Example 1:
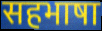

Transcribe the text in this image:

सहभाषा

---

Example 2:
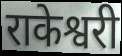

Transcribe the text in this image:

राकेश्वरी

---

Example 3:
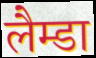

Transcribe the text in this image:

लैम्डा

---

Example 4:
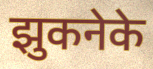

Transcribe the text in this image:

झुकनेके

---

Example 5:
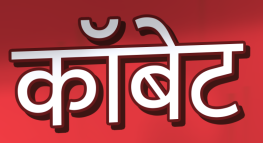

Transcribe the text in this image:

कॉबेट